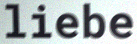
liebe